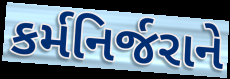
કર્મનિર્જરાને